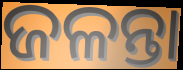
ଜଳନ୍ତା